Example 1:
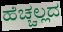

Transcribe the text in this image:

ಹೆಚ್ಚಲ್ಲದ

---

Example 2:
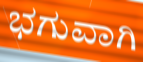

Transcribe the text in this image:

ಭಗುವಾಗಿ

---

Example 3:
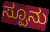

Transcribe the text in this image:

ಸ್ಪೂನು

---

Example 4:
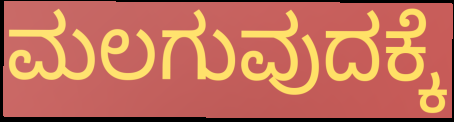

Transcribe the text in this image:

ಮಲಗುವುದಕ್ಕೆ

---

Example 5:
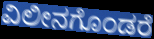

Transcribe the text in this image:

ವಿಲೀನಗೊಂಡರೆ